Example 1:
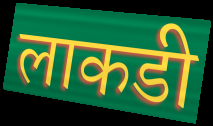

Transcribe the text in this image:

लाकडी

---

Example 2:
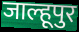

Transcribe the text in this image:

जाल्हूपुर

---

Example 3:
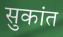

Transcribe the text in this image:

सुकांत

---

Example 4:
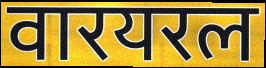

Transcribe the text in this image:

वारयरल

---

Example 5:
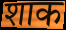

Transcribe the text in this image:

शाक